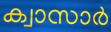
ക്വാസാർ